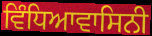
ਵਿੰਧਿਆਵਾਸਿਨੀ